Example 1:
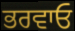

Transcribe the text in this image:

ਭਰਵਾਓ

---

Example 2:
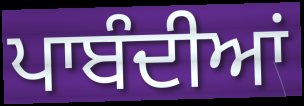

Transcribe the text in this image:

ਪਾਬੰਦੀਆਂ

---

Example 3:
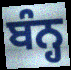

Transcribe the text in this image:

ਬੰਨ੍ਹ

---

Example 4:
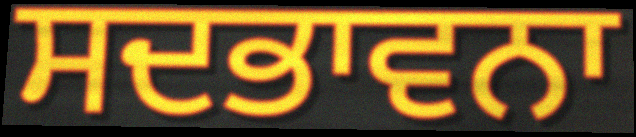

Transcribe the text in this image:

ਸਦਭਾਵਨਾ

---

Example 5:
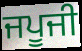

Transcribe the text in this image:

ਜਪੂਜੀ